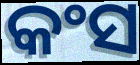
କଂସ